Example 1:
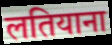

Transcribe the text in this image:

लतियाना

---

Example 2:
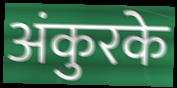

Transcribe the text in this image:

अंकुरके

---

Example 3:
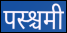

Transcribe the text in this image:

पस्श्चमी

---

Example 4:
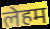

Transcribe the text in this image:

लेहम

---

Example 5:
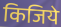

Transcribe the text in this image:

किजिये